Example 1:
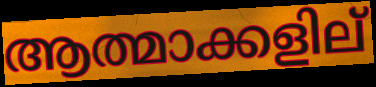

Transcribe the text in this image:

ആത്മാക്കളില്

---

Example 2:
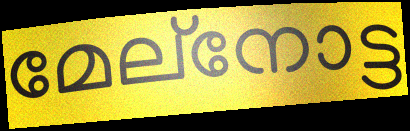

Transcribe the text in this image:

മേല്നോട്ട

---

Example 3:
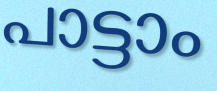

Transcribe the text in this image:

പാട്ടാം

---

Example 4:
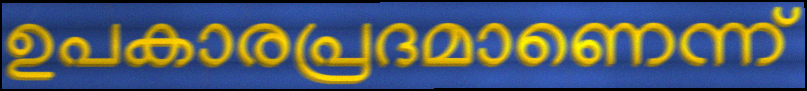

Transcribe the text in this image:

ഉപകാരപ്രദമാണെന്ന്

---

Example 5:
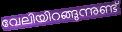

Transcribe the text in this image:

വേലിയിറങ്ങുന്നുണ്ട്